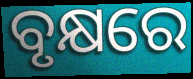
ବୃକ୍ଷରେ